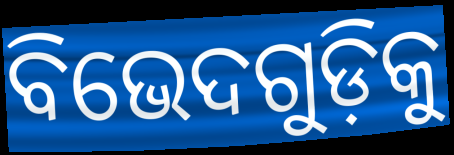
ବିଭେଦଗୁଡ଼ିକୁ